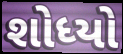
શોધ્યો